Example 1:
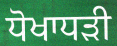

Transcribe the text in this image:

ਧੋਖਾਧਡ਼ੀ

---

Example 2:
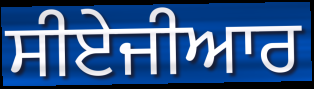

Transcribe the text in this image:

ਸੀਏਜੀਆਰ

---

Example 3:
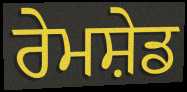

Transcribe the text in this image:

ਰੇਮਸ਼ੇਡ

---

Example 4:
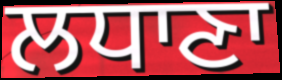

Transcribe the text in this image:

ਲਧਾਣਾ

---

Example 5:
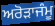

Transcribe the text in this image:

ਅਰੋੜਾਜੰਮੂ